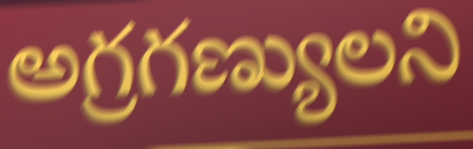
అగ్రగణ్యులని